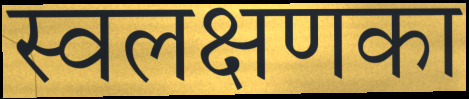
स्वलक्षणका